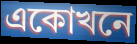
একোখনে